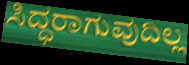
ಸಿದ್ಧರಾಗುವುದಿಲ್ಲ